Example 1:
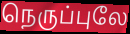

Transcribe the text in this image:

நெருப்புலே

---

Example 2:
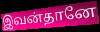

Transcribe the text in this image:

இவன்தானே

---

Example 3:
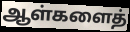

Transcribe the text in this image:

ஆள்களைத்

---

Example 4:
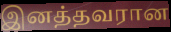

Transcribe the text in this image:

இனத்தவரான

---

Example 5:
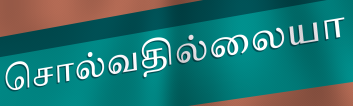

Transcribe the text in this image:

சொல்வதில்லையா